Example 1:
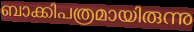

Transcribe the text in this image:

ബാക്കിപത്രമായിരുന്നു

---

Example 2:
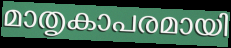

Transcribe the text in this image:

മാതൃകാപരമായി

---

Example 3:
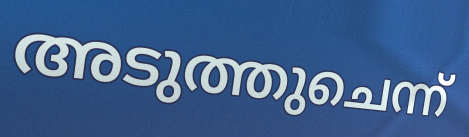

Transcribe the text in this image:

അടുത്തുചെന്ന്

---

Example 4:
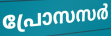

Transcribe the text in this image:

പ്രോസസർ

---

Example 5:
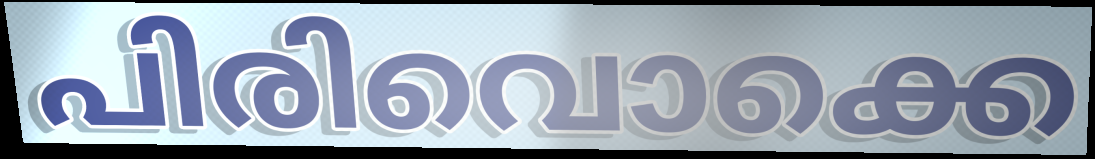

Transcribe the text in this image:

പിരിവൊക്കെ